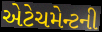
એટેચમેન્ટની